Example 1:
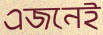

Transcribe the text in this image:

এজনেই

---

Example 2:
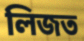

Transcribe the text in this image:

লিজত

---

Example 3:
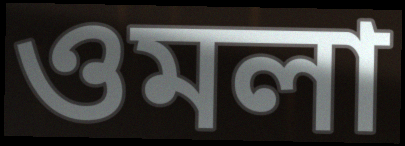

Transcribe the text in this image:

ওমলা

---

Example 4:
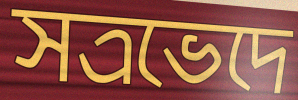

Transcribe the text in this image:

সত্ৰভেদে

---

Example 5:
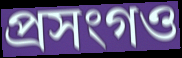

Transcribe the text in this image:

প্ৰসংগও